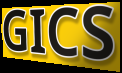
GICS